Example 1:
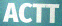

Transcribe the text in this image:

ACTT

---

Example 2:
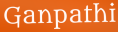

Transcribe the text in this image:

Ganpathi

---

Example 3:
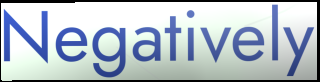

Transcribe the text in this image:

Negatively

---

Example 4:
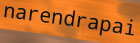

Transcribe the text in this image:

narendrapai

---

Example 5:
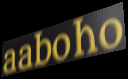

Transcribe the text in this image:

aaboho